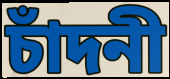
চাঁদনী